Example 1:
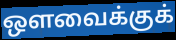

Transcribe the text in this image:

ஔவைக்குக்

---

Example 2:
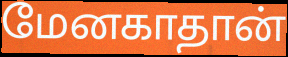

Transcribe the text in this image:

மேனகாதான்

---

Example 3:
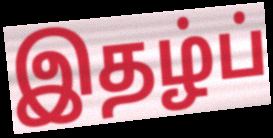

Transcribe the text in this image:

இதழ்ப்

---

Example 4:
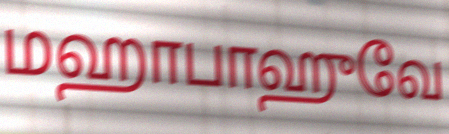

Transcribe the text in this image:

மஹாபாஹுவே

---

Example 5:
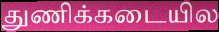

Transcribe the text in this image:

துணிக்கடையில